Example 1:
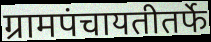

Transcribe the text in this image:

ग्रामपंचायतीतर्फे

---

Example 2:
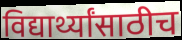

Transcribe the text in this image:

विद्यार्थ्यांसाठीच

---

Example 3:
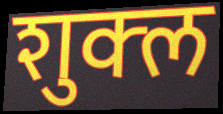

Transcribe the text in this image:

शुक्‍ल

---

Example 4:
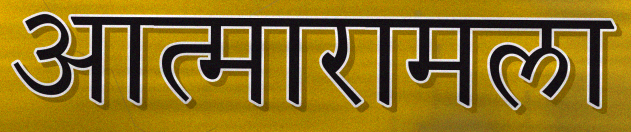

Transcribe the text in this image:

आत्मारामला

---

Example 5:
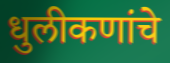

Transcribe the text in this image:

धुलीकणांचे